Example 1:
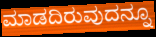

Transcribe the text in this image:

ಮಾಡದಿರುವುದನ್ನೂ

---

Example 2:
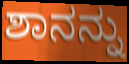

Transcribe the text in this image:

ಶಾನನ್ನು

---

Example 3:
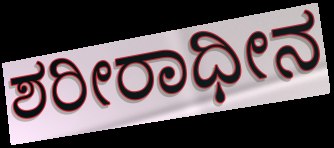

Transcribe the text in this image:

ಶರೀರಾಧೀನ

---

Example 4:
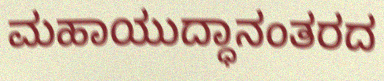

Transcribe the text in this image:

ಮಹಾಯುದ್ಧಾನಂತರದ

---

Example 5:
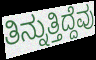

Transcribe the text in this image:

ತಿನ್ನುತ್ತಿದ್ದೆವು